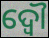
ଦ୍ଵୌ